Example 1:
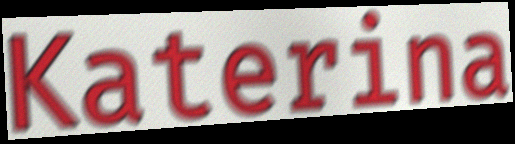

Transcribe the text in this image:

Katerina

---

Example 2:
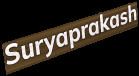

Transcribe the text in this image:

Suryaprakash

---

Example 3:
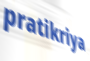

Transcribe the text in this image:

pratikriya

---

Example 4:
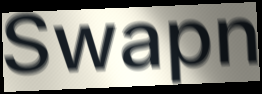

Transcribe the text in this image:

Swapn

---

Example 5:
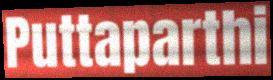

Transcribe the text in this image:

Puttaparthi